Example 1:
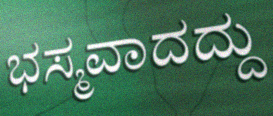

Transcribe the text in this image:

ಭಸ್ಮವಾದದ್ದು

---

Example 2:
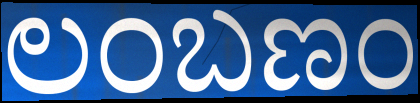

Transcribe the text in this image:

ಲಂಬಣಂ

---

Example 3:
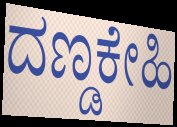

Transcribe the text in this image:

ದಣ್ಡಕೇಹಿ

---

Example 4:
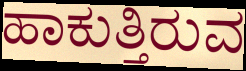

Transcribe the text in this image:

ಹಾಕುತ್ತಿರುವ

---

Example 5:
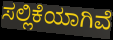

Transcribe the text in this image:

ಸಲ್ಲಿಕೆಯಾಗಿವೆ